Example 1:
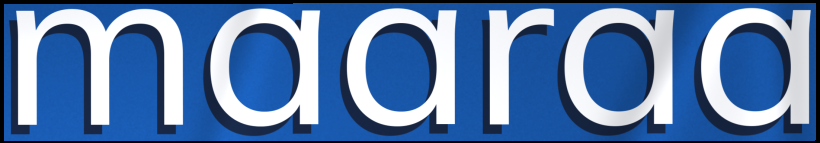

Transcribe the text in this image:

maaraa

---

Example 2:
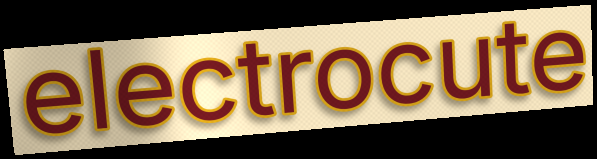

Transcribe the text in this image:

electrocute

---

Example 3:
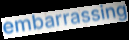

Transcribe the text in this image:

embarrassing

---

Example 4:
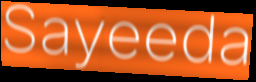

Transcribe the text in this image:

Sayeeda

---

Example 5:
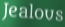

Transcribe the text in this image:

Jealous